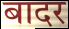
बादर